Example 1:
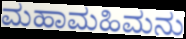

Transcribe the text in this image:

ಮಹಾಮಹಿಮನು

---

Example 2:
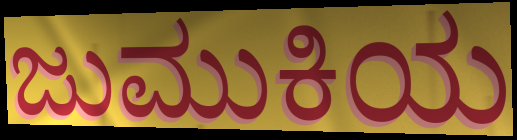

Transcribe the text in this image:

ಜುಮುಕಿಯ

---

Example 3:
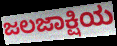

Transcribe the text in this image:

ಜಲಜಾಕ್ಷಿಯ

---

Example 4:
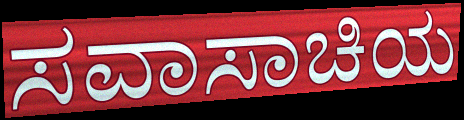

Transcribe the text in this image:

ಸವಾಸಾಚಿಯ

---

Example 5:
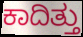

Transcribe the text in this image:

ಕಾದಿತ್ತು